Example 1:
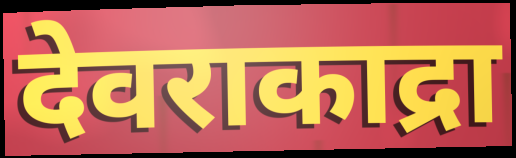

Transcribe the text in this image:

देवराकाद्रा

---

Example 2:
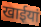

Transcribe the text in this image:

खाईयां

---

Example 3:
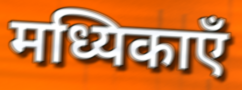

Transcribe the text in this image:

मध्यिकाएँ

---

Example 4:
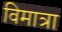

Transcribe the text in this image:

विमात्रा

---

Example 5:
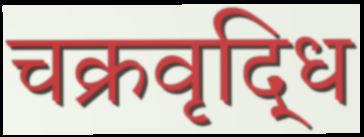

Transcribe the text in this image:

चक्रवृद्धि